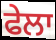
ਫੇਲਾ